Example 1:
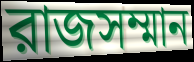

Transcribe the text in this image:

রাজসম্মান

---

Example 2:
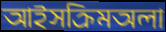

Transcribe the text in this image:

আইসক্রিমঅলা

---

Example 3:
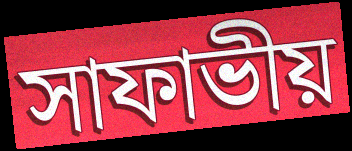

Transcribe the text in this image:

সাফাভীয়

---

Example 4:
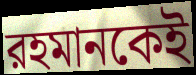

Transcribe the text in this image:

রহমানকেই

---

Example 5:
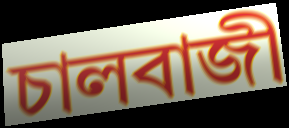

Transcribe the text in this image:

চালবাজী